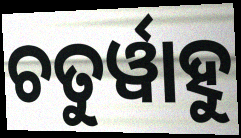
ଚତୁର୍ୱାହୁ